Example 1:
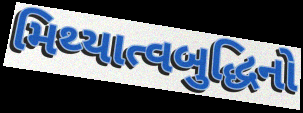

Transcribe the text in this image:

મિથ્યાત્વબુદ્ધિનો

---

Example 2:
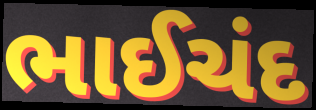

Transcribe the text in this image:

ભાઈચંદ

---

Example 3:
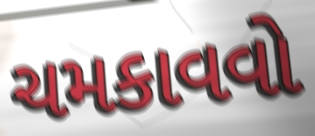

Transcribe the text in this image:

ચમકાવવો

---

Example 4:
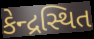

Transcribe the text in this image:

કેન્દ્રસ્થિત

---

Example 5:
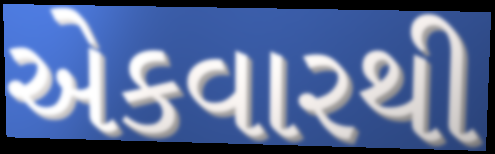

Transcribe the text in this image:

એકવારથી